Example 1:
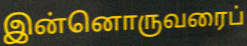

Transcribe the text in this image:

இன்னொருவரைப்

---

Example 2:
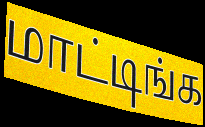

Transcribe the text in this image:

மாட்டிங்க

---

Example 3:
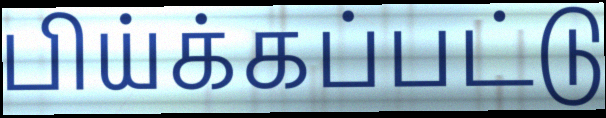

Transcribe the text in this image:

பிய்க்கப்பட்டு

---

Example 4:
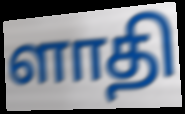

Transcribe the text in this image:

ளாதி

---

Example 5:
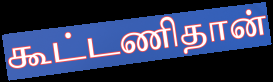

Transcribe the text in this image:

கூட்டணிதான்